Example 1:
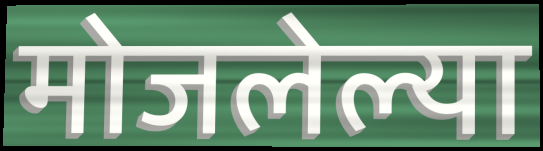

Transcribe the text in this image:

मोजलेल्या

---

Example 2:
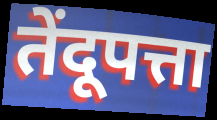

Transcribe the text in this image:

तेंदूपत्ता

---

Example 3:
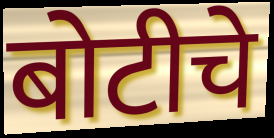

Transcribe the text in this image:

बोटीचे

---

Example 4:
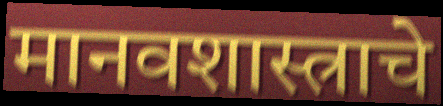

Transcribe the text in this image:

मानवशास्त्राचे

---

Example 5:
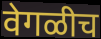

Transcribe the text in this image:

वेगळीच